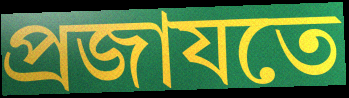
প্রজাযতে